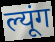
ल्यूंग